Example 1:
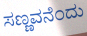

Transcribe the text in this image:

ಸಣ್ಣವನೆಂದು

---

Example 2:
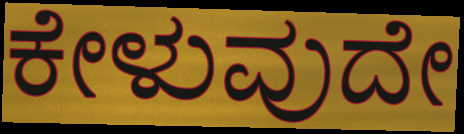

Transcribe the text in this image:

ಕೇಳುವುದೇ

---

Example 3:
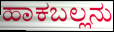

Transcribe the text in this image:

ಹಾಕಬಲ್ಲನು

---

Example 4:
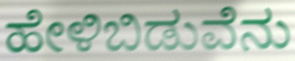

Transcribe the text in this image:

ಹೇಳಿಬಿಡುವೆನು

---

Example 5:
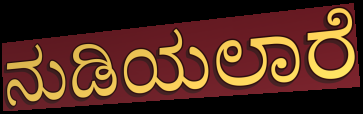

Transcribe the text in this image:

ನುಡಿಯಲಾರೆ